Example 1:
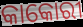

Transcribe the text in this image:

କାକୋରୀ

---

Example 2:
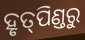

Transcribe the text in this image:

ହୃତ୍‌ପିଣ୍ଡରୁ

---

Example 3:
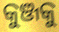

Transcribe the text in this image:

କୁଞ୍ଜକୁ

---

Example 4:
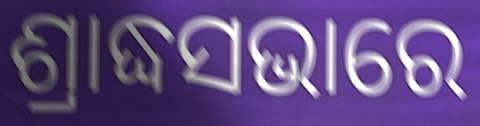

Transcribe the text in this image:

ଶ୍ରାଦ୍ଧସଭାରେ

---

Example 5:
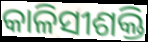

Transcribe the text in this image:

କାଳିସୀଶକ୍ତି